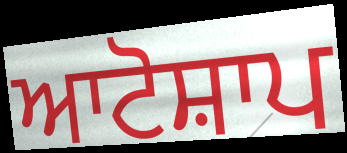
ਆਟੋਸ਼ਾਪ